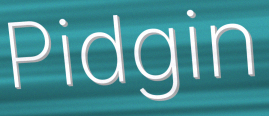
Pidgin